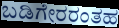
ಬಡಿಗೇರರಂತಹ